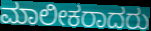
ಮಾಲೀಕರಾದರು